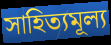
সাহিত্যমূল্য